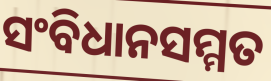
ସଂବିଧାନସମ୍ମତ